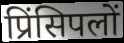
प्रिंसिपलों